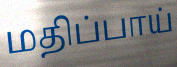
மதிப்பாய்